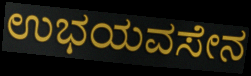
ಉಭಯವಸೇನ